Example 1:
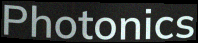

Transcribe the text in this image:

Photonics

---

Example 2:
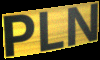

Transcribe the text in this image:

PLN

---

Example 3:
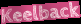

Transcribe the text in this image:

Keelback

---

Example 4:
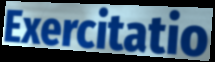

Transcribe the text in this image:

Exercitatio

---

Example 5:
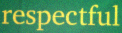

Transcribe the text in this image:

respectful